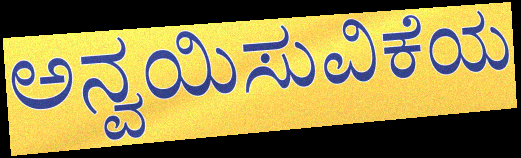
ಅನ್ವಯಿಸುವಿಕೆಯ